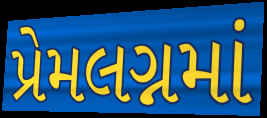
પ્રેમલગ્નમાં